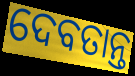
ଦେବତାନ୍ତ